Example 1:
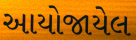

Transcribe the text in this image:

આયોજાયેલ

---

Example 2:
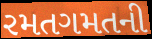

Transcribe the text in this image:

રમતગમતની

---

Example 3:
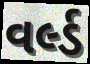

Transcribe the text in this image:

વર્લ્ડ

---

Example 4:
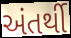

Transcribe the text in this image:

અંતર્થી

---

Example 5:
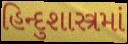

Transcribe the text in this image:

હિન્દુશાસ્ત્રમાં